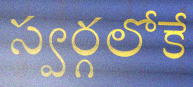
స్వర్గలోకే